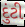
દુંટી